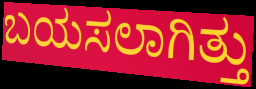
ಬಯಸಲಾಗಿತ್ತು